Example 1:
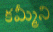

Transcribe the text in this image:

కమ్మీని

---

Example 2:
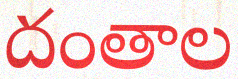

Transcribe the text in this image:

దంతాల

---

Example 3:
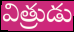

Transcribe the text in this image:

విత్రుడు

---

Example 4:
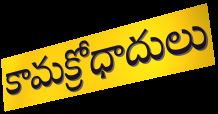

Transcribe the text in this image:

కామక్రోధాదులు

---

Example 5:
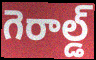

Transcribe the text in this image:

గెరాల్డ్